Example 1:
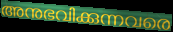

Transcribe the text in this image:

അനുഭവിക്കുന്നവരെ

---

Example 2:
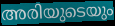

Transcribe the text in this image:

അരിയുടെയും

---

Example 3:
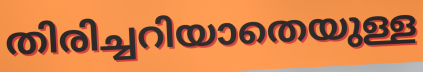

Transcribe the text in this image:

തിരിച്ചറിയാതെയുള്ള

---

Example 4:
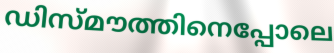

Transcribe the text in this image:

ഡിസ്മൗത്തിനെപ്പോലെ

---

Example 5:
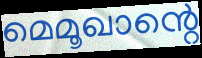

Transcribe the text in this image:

മെമൂഖാന്റെ